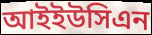
আইইউসিএন